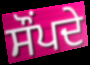
ਸੌਂਪਦੇ